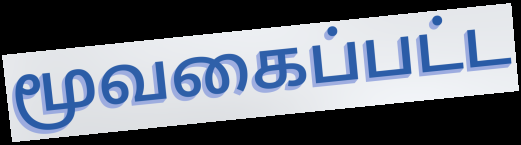
மூவகைப்பட்ட